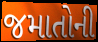
જમાતોની